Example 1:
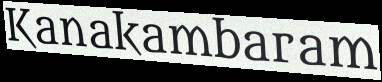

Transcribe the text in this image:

Kanakambaram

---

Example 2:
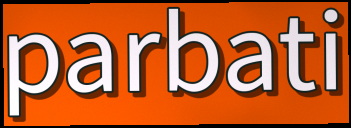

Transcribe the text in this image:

parbati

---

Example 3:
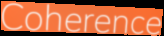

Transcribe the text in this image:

Coherence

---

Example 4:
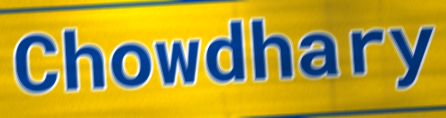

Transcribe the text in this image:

Chowdhary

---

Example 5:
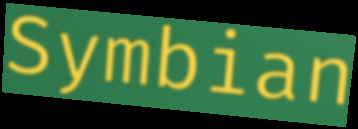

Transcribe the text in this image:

Symbian